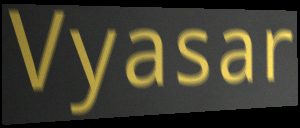
Vyasar